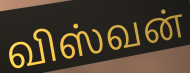
விஸ்வன்